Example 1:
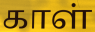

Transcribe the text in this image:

காள்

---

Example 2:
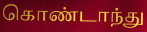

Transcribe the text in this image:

கொண்டாந்து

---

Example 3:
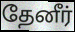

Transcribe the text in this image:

தேனீர்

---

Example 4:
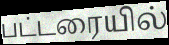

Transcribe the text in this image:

பட்டரையில்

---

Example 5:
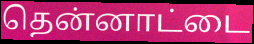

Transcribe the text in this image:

தென்னாட்டை